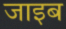
जाइब